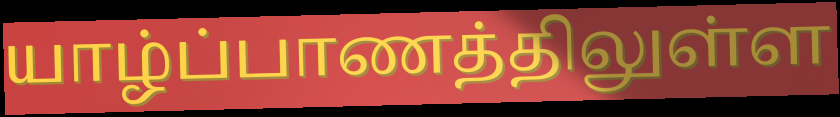
யாழ்ப்பாணத்திலுள்ள